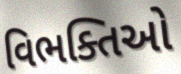
વિભક્તિઓ